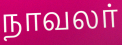
நாவலர்